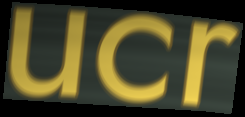
ucr